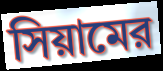
সিয়ামের